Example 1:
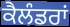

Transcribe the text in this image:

ਕੈਲੰਡਰਾਂ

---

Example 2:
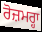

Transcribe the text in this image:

ਰੋਜ਼ਮਰ੍ਹਾ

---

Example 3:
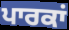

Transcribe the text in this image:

ਪਾਰਕਾਂ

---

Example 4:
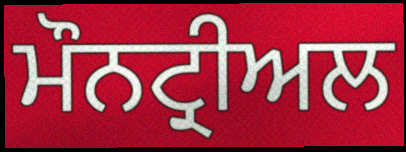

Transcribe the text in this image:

ਮੌਨਟ੍ਰੀਅਲ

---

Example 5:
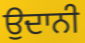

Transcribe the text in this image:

ਉਦਾਨੀ